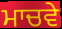
ਮਾਚਵੇ